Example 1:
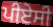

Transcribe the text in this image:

ਪੀਏਸੀ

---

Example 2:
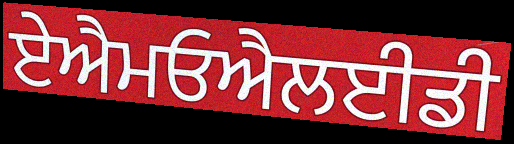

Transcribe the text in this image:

ਏਐਮਓਐਲਈਡੀ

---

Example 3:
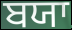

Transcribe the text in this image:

ਬਯਾ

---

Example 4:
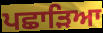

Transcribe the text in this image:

ਪਛਾੜਿਆ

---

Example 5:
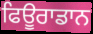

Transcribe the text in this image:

ਫਿਊਰਾਡਾਨ